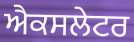
ਐਕਸਲੇਟਰ